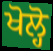
ਖੋਲ੍ਹੋ